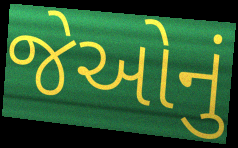
જેઓનું